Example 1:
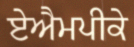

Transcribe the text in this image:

ਏਐਮਪੀਕੇ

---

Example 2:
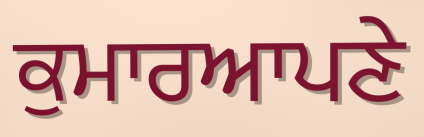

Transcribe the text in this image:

ਕੁਮਾਰਆਪਣੇ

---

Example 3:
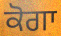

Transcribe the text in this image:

ਕੋਗਾ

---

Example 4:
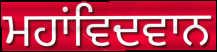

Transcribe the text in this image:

ਮਹਾਂਵਿਦਵਾਨ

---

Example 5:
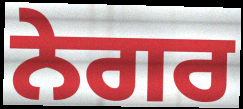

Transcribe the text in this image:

ਨੇਗਰ